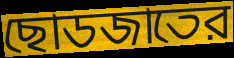
ছোডজাতের